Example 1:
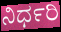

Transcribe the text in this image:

ನಿರ್ಧರಿ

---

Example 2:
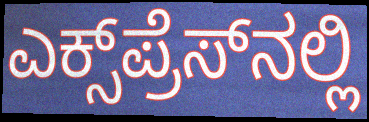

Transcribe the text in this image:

ಎಕ್ಸ್‌ಪ್ರೆಸ್‌ನಲ್ಲಿ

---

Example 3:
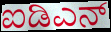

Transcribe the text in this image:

ಐಡಿಎನ್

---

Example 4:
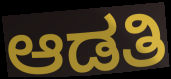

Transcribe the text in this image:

ಆಡತಿ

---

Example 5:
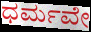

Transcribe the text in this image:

ಧರ್ಮವೇ